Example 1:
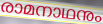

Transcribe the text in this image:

രാമനാഥനും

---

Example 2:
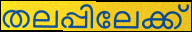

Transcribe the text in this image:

തലപ്പിലേക്ക്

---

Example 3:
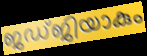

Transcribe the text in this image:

ജഡ്ജിയാകും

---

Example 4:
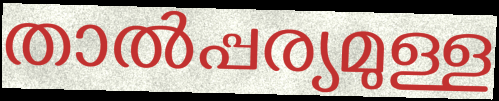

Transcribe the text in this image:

താൽപ്പര്യമുള്ള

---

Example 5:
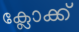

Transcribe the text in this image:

ക്ലോക്ക്